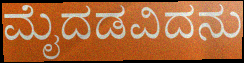
ಮೈದಡವಿದನು